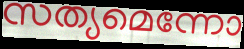
സത്യമെന്നോ